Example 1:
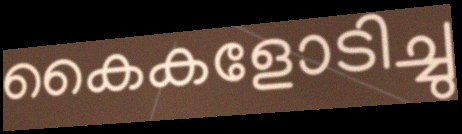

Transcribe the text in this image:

കൈകളോടിച്ചു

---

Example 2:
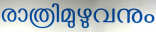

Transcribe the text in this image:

രാത്രിമുഴുവനും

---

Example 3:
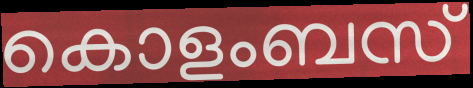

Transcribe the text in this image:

കൊളംബസ്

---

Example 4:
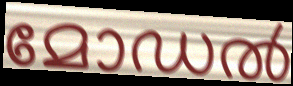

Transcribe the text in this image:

മോഡൽ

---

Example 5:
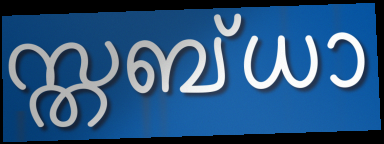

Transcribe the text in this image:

സ്തബ്ധാ